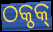
ଠକ୍ଠକ୍